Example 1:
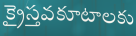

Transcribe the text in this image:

క్రైస్తవకూటాలకు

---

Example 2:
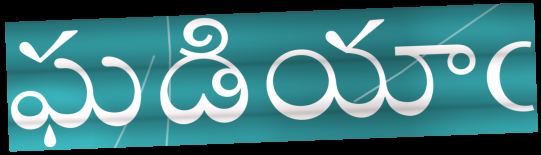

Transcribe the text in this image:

ఘడియాఁ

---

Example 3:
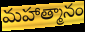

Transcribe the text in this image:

మహాత్మానం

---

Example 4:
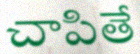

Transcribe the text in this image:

చాపితే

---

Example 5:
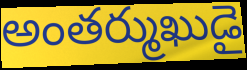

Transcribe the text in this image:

అంతర్ముఖుడై